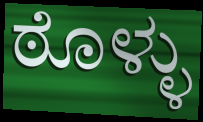
ಠೊಳ್ಳು